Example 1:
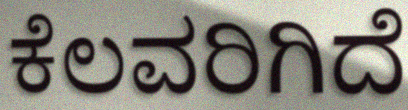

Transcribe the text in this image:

ಕೆಲವರಿಗಿದೆ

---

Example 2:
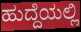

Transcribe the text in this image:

ಹುದ್ದೆಯಲ್ಲಿ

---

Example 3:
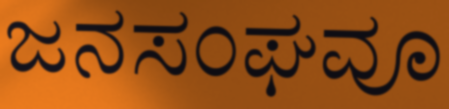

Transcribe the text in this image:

ಜನಸಂಘವೂ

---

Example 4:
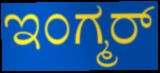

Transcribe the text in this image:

ಇಂಗ್ಮರ್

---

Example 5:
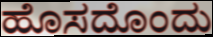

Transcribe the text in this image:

ಹೊಸದೊಂದು